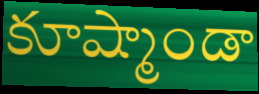
కూష్మాండా